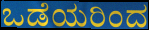
ಒಡೆಯರಿಂದ